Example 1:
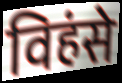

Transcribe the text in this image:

विहंसे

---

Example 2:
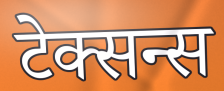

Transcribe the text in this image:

टेक्सन्स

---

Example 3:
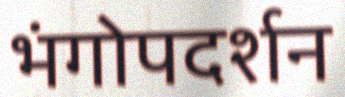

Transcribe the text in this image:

भंगोपदर्शन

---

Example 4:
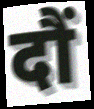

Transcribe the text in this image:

दौं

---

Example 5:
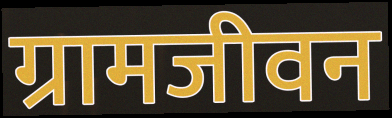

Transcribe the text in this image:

ग्रामजीवन